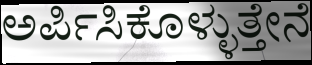
ಅರ್ಪಿಸಿಕೊಳ್ಳುತ್ತೇನೆ